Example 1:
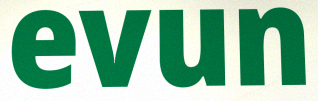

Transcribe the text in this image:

evun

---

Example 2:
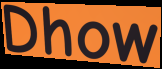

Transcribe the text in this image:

Dhow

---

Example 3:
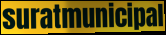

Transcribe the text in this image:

suratmunicipal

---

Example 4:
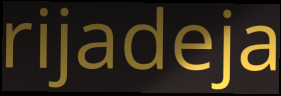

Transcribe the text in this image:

rijadeja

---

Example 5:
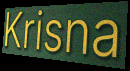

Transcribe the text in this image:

Krisna